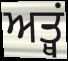
ਅਤ੍ਥਂ